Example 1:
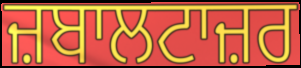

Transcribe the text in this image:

ਜ਼ਬਾਲਟਾਜ਼ਰ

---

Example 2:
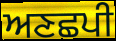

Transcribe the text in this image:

ਅਣਛਪੀ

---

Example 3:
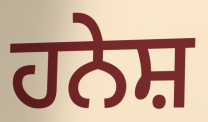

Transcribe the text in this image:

ਹਨੇਸ਼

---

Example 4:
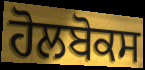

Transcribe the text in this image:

ਹੋਲਬੋਕਸ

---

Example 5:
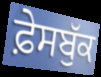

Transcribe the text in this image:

ਫ਼ੇਸਬੁੱਕ